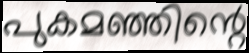
പുകമഞ്ഞിന്റെ